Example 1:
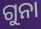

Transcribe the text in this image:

ଗୁନା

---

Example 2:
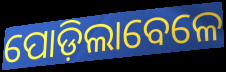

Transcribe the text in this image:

ପୋଡ଼ିଲାବେଳେ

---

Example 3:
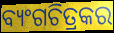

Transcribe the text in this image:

ବ୍ୟଂଗଚିତ୍ରକର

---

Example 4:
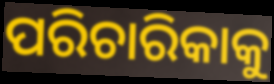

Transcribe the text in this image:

ପରିଚାରିକାକୁ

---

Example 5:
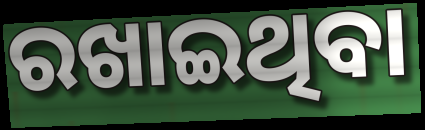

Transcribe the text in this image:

ରଖାଇଥିବା